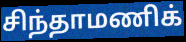
சிந்தாமணிக்